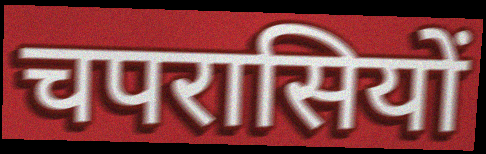
चपरासियों